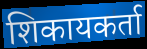
शिकायकर्ता